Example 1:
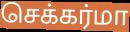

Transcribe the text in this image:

செக்கர்மா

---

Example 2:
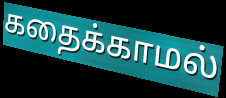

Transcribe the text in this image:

கதைக்காமல்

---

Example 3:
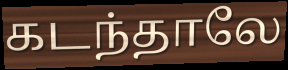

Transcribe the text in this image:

கடந்தாலே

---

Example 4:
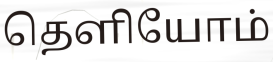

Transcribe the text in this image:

தெளியோம்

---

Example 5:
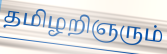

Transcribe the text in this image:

தமிழறிஞரும்